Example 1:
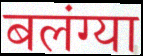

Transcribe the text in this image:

बलंग्या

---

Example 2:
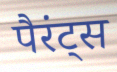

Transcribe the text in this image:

पैरंट्स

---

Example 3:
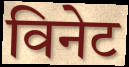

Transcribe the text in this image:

विनेट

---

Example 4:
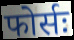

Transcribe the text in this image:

फोर्सः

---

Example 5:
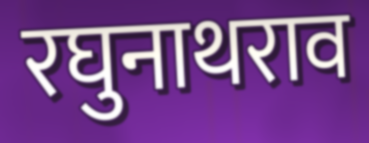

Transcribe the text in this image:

रघुनाथराव